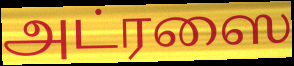
அட்ரஸை